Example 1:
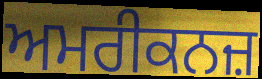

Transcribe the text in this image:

ਅਮਰੀਕਨਜ਼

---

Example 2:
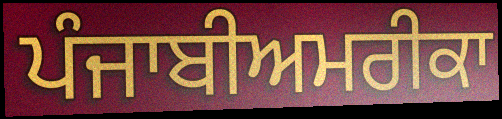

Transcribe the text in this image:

ਪੰਜਾਬੀਅਮਰੀਕਾ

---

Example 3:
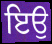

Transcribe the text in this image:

ਇਉ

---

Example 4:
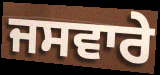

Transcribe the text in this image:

ਜਸਵਾਰੇ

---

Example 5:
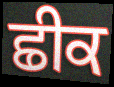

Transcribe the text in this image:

ਛੀਕ